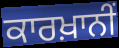
ਕਾਰਖ਼ਾਨੀਂ